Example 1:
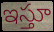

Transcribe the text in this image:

ఇస్తూ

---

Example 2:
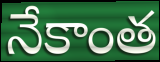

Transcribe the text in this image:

నేకాంత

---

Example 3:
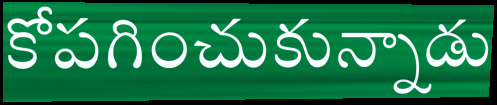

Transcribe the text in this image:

కోపగించుకున్నాడు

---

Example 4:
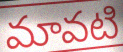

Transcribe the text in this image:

మావటి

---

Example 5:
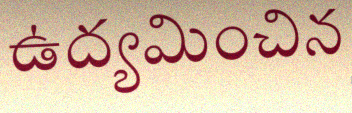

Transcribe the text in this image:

ఉద్యమించిన